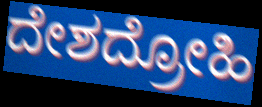
ದೇಶದ್ರೋಹಿ